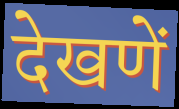
देखणें